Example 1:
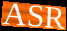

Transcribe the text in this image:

ASR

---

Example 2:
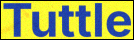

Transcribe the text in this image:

Tuttle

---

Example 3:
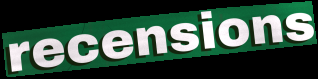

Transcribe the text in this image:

recensions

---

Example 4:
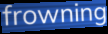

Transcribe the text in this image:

frowning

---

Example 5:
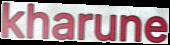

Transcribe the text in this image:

kharune